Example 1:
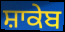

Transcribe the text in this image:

ਸ਼ਾਕੇਬ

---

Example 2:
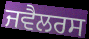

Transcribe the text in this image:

ਜਵੈਲਰਸ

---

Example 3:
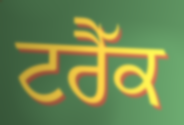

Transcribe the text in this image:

ਟਰੈੱਕ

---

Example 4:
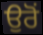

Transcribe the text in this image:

ਉਰੋਂ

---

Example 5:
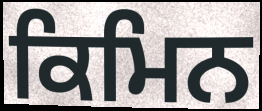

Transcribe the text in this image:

ਕਿਮਿਨ